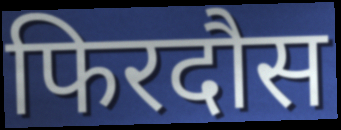
फिरदौस